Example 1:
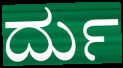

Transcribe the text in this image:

ರ್ದು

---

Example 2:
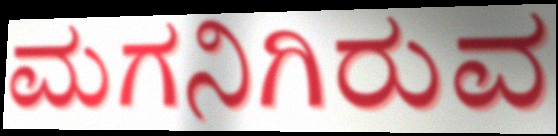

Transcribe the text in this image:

ಮಗನಿಗಿರುವ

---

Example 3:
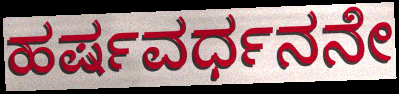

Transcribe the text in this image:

ಹರ್ಷವರ್ಧನನೇ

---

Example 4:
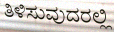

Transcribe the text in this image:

ತಿಳಿಸುವುದರಲ್ಲಿ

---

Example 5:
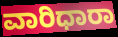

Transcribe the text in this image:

ವಾರಿಧಾರಾ